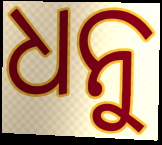
ଧନୁ